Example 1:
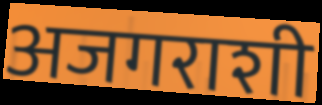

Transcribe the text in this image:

अजगराशी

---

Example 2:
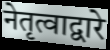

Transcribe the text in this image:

नेतृत्वाद्वारे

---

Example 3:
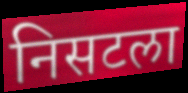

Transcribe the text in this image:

निसटला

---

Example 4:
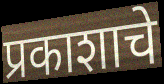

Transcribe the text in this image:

प्रकाशाचे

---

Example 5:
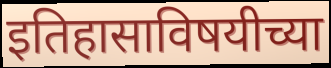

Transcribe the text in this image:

इतिहासाविषयीच्या